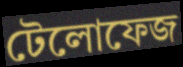
টেলোফেজ